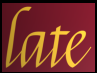
late